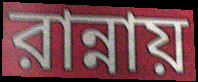
রান্নায়